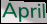
April